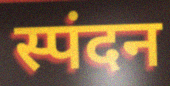
स्पंदन